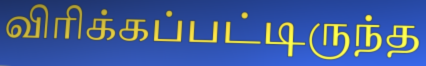
விரிக்கப்பட்டிருந்த